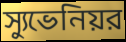
স্যুভেনিয়র